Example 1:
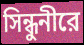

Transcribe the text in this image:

সিন্ধুনীরে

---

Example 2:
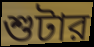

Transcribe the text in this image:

শুটার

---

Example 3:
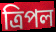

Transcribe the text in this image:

ত্রিপল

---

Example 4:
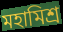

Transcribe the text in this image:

মহামিশ্র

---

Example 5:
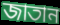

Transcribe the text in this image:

জাতান